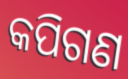
କପିଗଣ